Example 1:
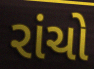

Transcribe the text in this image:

રાંચો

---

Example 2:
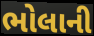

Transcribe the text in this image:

ભોલાની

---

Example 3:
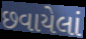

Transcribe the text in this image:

છવાયેલાં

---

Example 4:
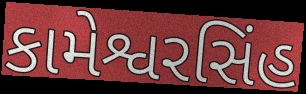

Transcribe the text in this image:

કામેશ્વરસિંહ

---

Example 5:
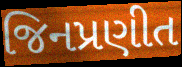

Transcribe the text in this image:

જિનપ્રણીત